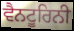
ਵੈਨਟੂਰਿਨੀ